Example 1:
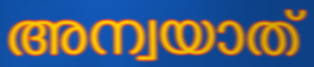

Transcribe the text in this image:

അന്വയാത്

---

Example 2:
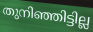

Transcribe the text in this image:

തുനിഞ്ഞിട്ടില്ല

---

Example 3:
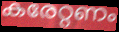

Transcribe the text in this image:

കരേറ്റണം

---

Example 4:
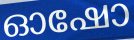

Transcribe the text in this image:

ഓഷോ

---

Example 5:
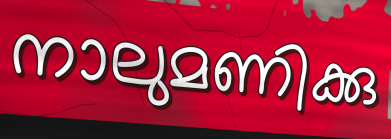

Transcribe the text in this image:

നാലുമണിക്കു